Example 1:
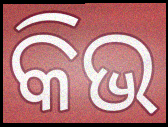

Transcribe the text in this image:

କିଭ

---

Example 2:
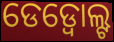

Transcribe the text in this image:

ଡେଡ୍ବୋଲ୍ଟ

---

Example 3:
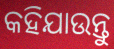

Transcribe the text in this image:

କହିଯାଉନ୍ତୁ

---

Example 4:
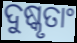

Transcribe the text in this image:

ଦୁଷ୍କୃତାଂ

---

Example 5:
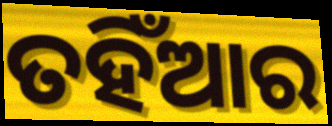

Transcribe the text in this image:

ତହିଁଆର